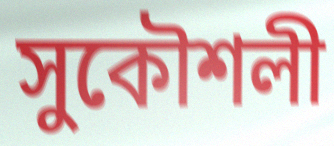
সুকৌশলী